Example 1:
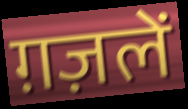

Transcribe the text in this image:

ग़ज़लें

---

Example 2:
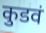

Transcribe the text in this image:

कुडवं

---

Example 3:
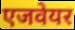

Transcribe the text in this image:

एजवेयर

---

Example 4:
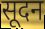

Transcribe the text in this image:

सूदन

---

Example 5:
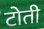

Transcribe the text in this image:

टोती